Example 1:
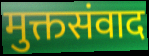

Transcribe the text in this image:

मुक्तसंवाद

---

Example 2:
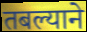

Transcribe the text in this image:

तबल्याने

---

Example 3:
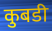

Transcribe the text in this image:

कुबडी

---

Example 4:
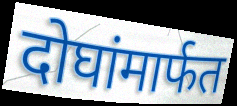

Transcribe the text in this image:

दोघांमार्फत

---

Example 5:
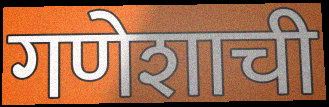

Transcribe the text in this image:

गणेशाची